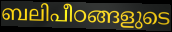
ബലിപീഠങ്ങളുടെ